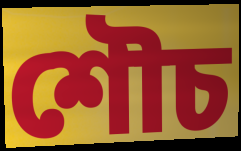
শৌচ